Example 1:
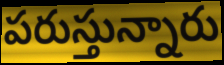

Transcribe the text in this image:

పరుస్తున్నారు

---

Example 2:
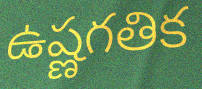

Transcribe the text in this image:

ఉష్ణగతిక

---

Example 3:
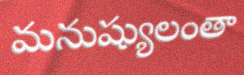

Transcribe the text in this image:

మనుష్యులంతా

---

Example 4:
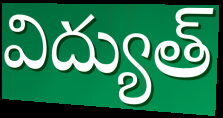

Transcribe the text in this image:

విద్యుత్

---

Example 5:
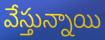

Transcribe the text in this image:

వేస్తున్నాయి